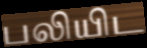
பலியிட